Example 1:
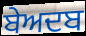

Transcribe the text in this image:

ਬੇਅਦਬ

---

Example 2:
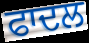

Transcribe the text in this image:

ਫਾਦਲ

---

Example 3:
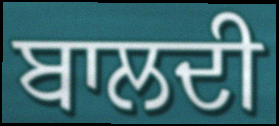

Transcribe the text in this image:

ਬਾਲਦੀ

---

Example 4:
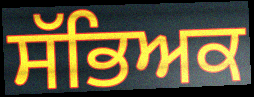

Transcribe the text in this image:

ਸੱਭਿਅਕ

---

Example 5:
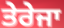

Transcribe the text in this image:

ਤੇਰੇਜਾ